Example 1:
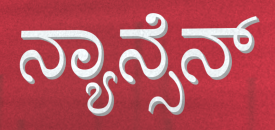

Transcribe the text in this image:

ನ್ಯಾನ್ಸೆನ್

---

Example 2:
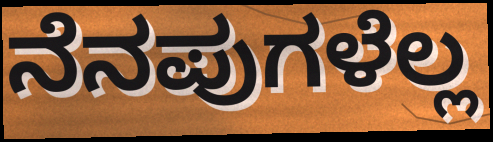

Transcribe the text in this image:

ನೆನಪುಗಳೆಲ್ಲ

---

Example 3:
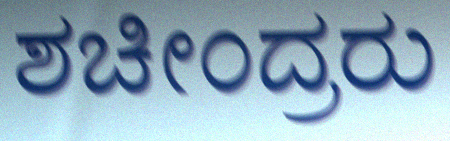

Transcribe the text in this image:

ಶಚೀಂದ್ರರು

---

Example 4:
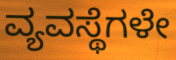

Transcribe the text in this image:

ವ್ಯವಸ್ಥೆಗಳೇ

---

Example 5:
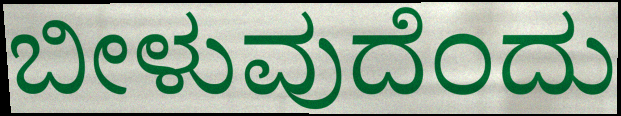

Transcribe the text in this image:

ಬೀಳುವುದೆಂದು